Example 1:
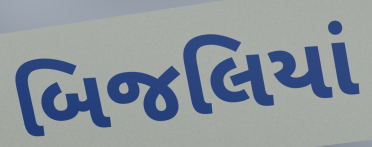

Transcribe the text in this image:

બિજલિયાં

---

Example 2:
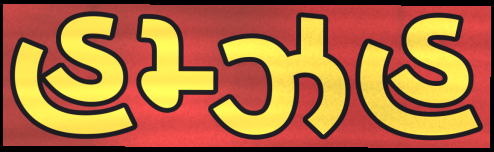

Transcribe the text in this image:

હમ્ઝહ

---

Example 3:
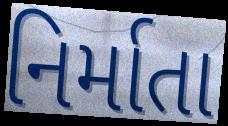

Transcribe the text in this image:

નિર્માતા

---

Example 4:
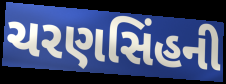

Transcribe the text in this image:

ચરણસિંહની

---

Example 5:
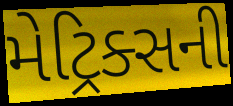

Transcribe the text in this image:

મેટ્રિક્સની